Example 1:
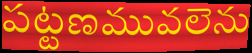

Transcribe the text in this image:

పట్టణమువలెను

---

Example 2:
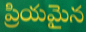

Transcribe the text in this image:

ప్రియమైన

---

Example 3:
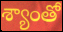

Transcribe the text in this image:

శ్యాంతో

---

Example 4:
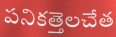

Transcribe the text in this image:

పనికత్తెలచేత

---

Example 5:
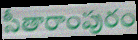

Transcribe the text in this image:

సీతారాంపురం